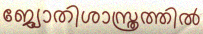
ജ്യോതിശാസ്ത്രത്തിൽ